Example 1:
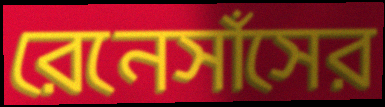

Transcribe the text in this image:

রেনেসাঁসের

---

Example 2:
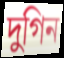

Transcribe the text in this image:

দুগিন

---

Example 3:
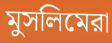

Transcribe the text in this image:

মুসলিমেরা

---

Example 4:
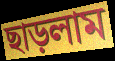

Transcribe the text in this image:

ছাড়লাম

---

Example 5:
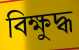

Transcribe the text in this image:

বিক্ষুদ্ধ